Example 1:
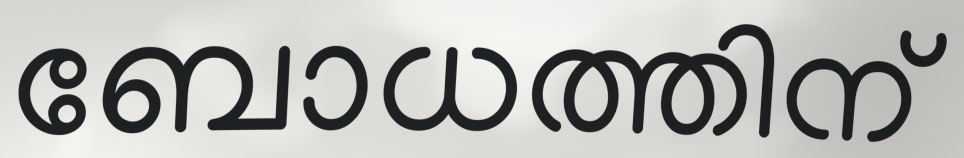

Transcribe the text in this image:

ബോധത്തിന്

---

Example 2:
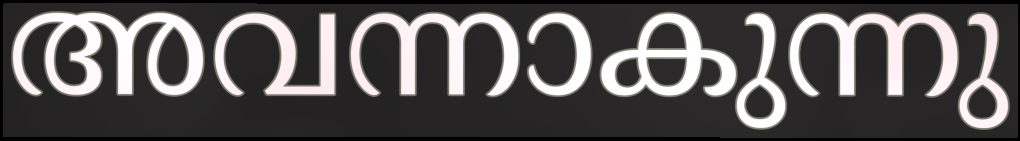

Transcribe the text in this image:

അവന്നാകുന്നു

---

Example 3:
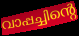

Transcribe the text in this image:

വാപ്പച്ചിന്റെ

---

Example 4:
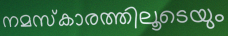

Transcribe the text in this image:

നമസ്കാരത്തിലൂടെയും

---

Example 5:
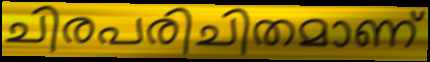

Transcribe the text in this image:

ചിരപരിചിതമാണ്